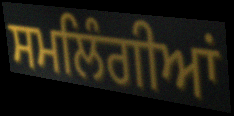
ਸਮਲਿੰਗੀਆਂ